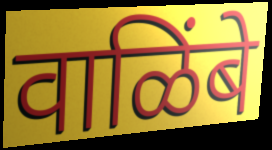
वाळिंबे